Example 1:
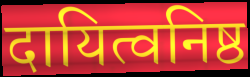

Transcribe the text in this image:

दायित्वनिष्ठ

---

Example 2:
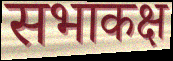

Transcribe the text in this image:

सभाकक्ष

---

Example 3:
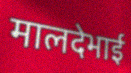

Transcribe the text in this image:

मालदेभाई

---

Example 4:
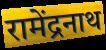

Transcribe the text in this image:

रामेंद्रनाथ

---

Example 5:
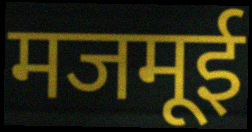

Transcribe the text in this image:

मजमूई